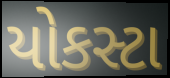
યોકસ્ટા